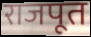
राजपूत